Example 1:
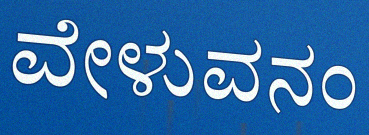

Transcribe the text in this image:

ವೇಳುವನಂ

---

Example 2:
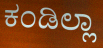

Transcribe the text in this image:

ಕಂಡಿಲ್ಲಾ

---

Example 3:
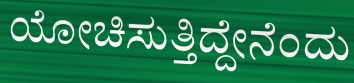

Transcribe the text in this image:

ಯೋಚಿಸುತ್ತಿದ್ದೇನೆಂದು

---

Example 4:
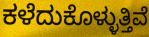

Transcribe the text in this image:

ಕಳೆದುಕೊಳ್ಳುತ್ತಿವೆ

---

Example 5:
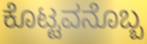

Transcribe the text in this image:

ಕೊಟ್ಟವನೊಬ್ಬ